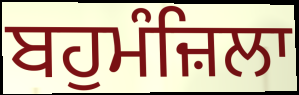
ਬਹੁਮੰਜ਼ਿਲਾ